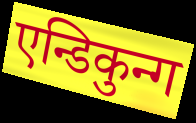
एन्डिकुन्ग